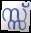
സ്സ്